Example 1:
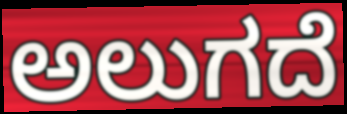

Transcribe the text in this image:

ಅಲುಗದೆ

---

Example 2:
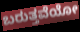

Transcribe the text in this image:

ಬರುತ್ತವೆಯೋ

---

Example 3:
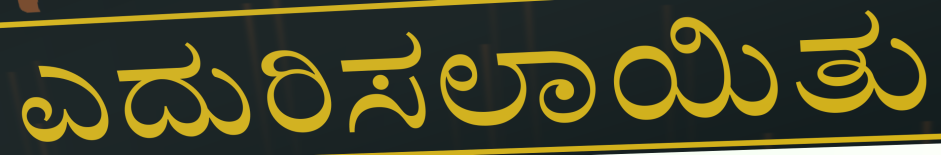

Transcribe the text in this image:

ಎದುರಿಸಲಾಯಿತು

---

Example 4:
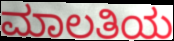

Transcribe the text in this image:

ಮಾಲತಿಯ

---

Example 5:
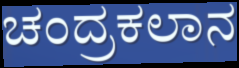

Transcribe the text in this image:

ಚಂದ್ರಕಲಾನ